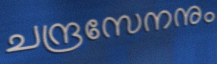
ചന്ദ്രസേനനും